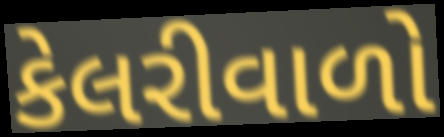
કેલરીવાળો